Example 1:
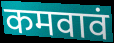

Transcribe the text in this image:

कमवावं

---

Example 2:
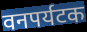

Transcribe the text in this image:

वनपर्यटक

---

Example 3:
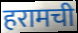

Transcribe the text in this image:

हरामची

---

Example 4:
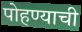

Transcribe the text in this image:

पोहण्याची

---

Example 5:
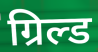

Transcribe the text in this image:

ग्रिल्ड